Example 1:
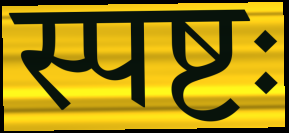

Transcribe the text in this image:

स्पष्टः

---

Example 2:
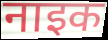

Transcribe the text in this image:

नाइक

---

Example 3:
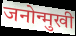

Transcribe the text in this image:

जनोन्मुखी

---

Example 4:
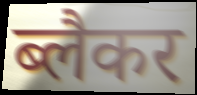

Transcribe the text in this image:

ब्लैकर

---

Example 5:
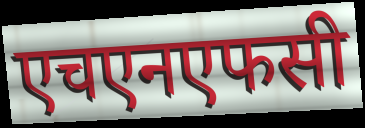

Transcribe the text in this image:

एचएनएफसी